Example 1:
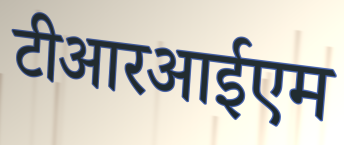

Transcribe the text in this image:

टीआरआईएम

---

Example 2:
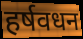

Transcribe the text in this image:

हर्षवधन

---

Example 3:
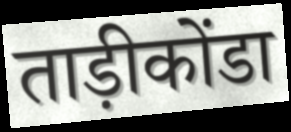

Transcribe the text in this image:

ताड़ीकोंडा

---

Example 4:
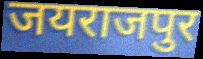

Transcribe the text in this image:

जयराजपुर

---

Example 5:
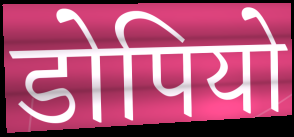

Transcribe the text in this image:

डोपियो